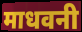
माधवनी